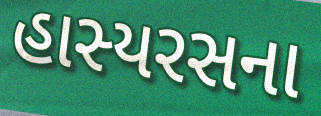
હાસ્યરસના